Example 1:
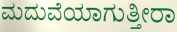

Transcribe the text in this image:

ಮದುವೆಯಾಗುತ್ತೀರಾ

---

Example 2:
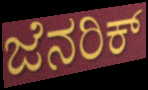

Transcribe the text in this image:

ಜೆನರಿಕ್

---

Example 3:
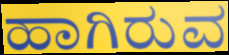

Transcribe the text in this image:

ಹಾಗಿರುವ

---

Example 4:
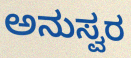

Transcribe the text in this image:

ಅನುಸ್ವರ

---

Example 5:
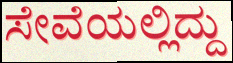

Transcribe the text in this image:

ಸೇವೆಯಲ್ಲಿದ್ದು